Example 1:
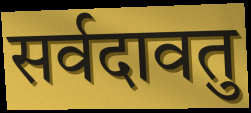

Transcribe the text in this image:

सर्वदावतु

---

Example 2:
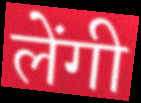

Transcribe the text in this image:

लेंगी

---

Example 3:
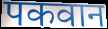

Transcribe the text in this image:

पकवान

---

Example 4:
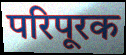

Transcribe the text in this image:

परिपूरक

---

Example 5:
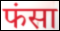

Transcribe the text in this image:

फंसा